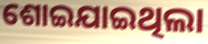
ଶୋଇଯାଇଥିଲା